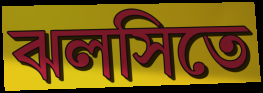
ঝলসিতে